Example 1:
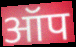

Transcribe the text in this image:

ऑप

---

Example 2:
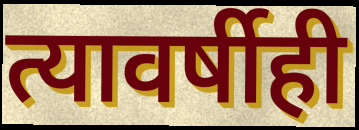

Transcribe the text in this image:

त्यावर्षीही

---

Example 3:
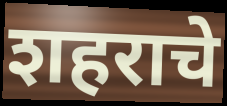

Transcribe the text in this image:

शहराचे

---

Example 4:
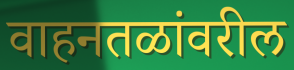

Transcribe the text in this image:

वाहनतळांवरील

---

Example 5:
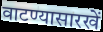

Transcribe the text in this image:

वाटण्यासारखें